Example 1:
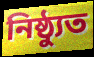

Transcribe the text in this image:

নিষ্ঠ্যুত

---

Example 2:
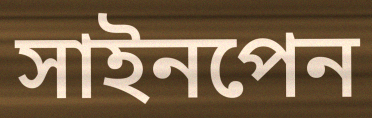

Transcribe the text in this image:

সাইনপেন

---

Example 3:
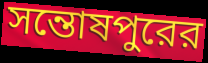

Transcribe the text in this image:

সন্তোষপুরের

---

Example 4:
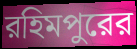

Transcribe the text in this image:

রহিমপুরের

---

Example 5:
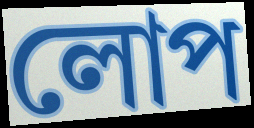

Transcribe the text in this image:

লোপ